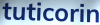
tuticorin